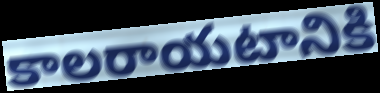
కాలరాయటానికి